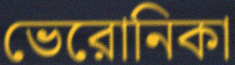
ভেরোনিকা